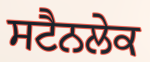
ਸਟੈਨਲੇਕ